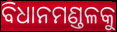
ବିଧାନମଣ୍ଡଳକୁ